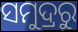
ସମୁଦ୍ରରୁ